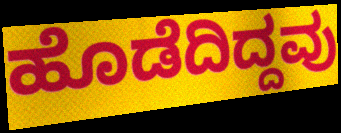
ಹೊಡೆದಿದ್ದವು